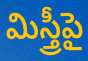
మిస్త్రీపై